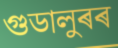
গুডালুৰৰ